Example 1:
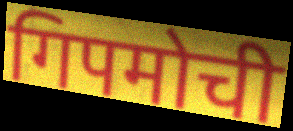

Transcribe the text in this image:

गिपमोची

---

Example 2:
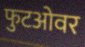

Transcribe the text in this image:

फुटओवर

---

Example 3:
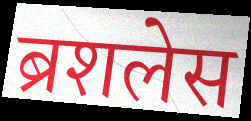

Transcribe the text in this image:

ब्रशलेस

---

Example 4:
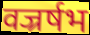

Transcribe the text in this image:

वज्रर्षभ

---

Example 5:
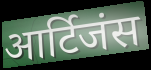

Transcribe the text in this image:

आर्टिजंस